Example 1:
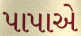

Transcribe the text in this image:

પાપાએ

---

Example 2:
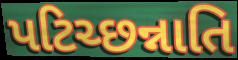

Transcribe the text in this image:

પટિચ્છન્નાતિ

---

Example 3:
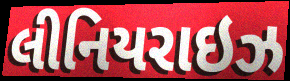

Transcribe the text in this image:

લીનિયરાઇઝ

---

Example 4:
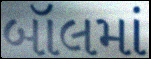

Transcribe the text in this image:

બૉલમાં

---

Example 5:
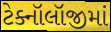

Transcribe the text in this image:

ટેક્નૉલૉજીમાં